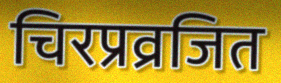
चिरप्रव्रजित